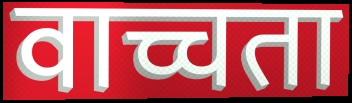
वाच्चता